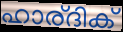
ഹാര്ദിക്